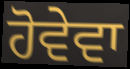
ਹੋਵੇਵਾ